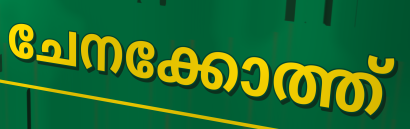
ചേനക്കോത്ത്